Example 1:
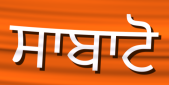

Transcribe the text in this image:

ਸਾਬਾਟੋ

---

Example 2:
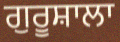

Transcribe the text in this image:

ਗੁਰੂਸ਼ਾਲਾ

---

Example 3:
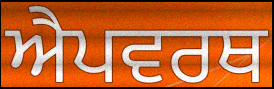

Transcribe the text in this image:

ਐਪਵਰਥ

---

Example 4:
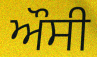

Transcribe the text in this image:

ਔਸੀ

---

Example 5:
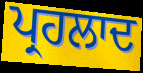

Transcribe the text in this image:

ਪ੍ਰਹਲਾਦ